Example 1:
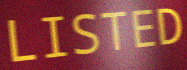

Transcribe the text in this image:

LISTED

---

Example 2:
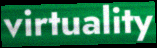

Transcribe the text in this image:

virtuality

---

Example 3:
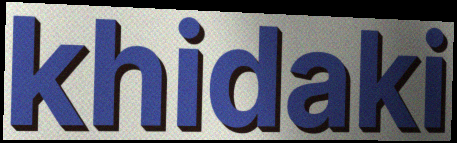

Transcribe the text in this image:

khidaki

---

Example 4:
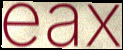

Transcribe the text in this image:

eax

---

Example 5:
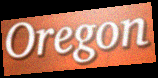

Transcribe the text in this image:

Oregon